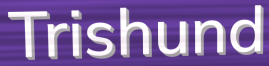
Trishund